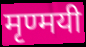
मृण्मयी